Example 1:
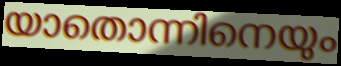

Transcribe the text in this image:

യാതൊന്നിനെയും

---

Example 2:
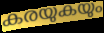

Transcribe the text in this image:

കരയുകയും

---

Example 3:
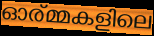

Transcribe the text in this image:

ഓര്മ്മകളിലെ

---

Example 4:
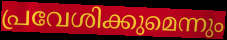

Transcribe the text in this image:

പ്രവേശിക്കുമെന്നും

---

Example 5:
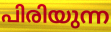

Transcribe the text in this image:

പിരിയുന്ന